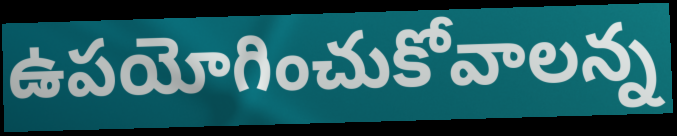
ఉపయోగించుకోవాలన్న